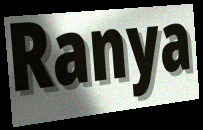
Ranya